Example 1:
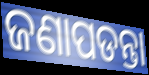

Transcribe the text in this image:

ଜଣାପଡନ୍ତା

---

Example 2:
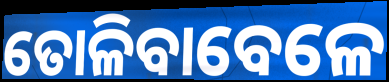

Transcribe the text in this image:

ତୋଳିବାବେଳେ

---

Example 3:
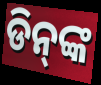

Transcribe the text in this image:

ଡିନ୍‍ଙ୍କ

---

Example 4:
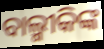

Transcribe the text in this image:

ବାଲ୍ମୀକିଙ୍କ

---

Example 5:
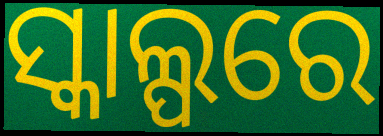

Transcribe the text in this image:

ସ୍କାଲ୍ପରେ